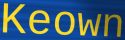
Keown